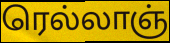
ரெல்லாஞ்